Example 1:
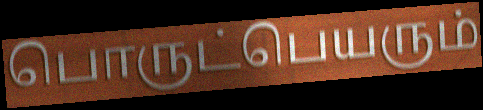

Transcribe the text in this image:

பொருட்பெயரும்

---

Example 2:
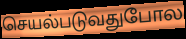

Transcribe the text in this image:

செயல்படுவதுபோல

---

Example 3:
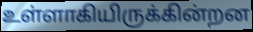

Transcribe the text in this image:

உள்ளாகியிருக்கின்றன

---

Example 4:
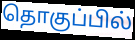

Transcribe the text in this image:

தொகுப்பில்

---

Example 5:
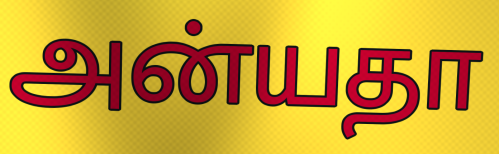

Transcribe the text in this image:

அன்யதா